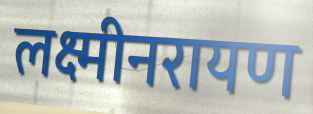
लक्ष्मीनरायण